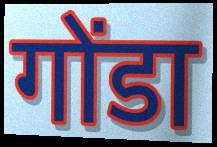
गोंडा